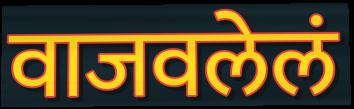
वाजवलेलं